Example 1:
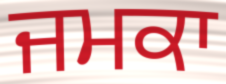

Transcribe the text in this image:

ਜਮਕਾ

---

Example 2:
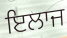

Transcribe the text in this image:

ਇਲਾਜ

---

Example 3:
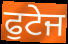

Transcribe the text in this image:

ਫੁਟੇਜ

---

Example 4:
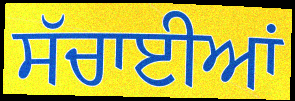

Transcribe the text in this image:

ਸੱਚਾਈਆਂ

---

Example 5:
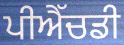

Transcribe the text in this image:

ਪੀਐੱਚਡੀ